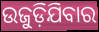
ଉଜୁଡ଼ିଯିବାର